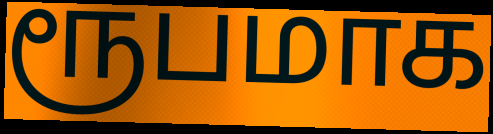
ரூபமாக